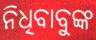
ନିଧିବାବୁଙ୍କ